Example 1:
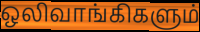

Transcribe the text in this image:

ஒலிவாங்கிகளும்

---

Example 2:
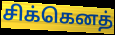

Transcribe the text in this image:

சிக்கெனத்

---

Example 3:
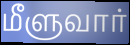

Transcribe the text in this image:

மீளுவார்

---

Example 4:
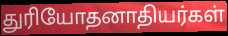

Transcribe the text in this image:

துரியோதனாதியர்கள்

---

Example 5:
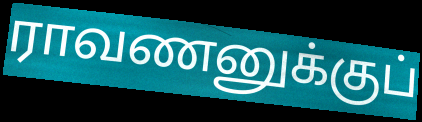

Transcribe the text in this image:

ராவணனுக்குப்